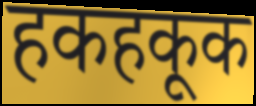
हकहकूक